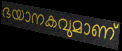
ഭയാനകവുമാണ്